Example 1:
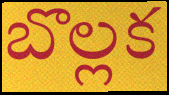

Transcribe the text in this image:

బొల్లక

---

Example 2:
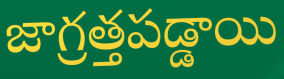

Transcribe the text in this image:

జాగ్రత్తపడ్డాయి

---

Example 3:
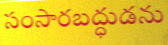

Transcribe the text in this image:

సంసారబద్ధుడను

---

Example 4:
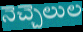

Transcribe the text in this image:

నెచ్చెలుల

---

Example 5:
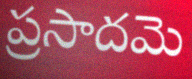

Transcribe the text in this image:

ప్రసాదమె